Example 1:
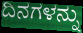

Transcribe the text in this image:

ದಿನಗಳನ್ನು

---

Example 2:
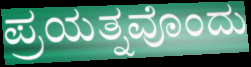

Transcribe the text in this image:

ಪ್ರಯತ್ನವೊಂದು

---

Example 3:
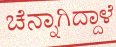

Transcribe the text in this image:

ಚೆನ್ನಾಗಿದ್ದಾಳೆ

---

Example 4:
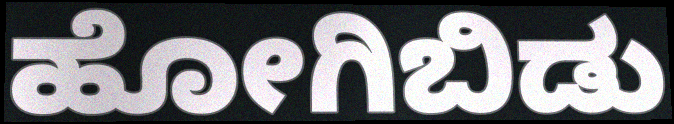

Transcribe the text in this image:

ಹೋಗಿಬಿಡು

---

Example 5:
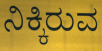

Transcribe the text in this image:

ನಿಕ್ಕಿರುವ